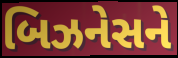
બિઝનેસને